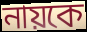
নায়কে